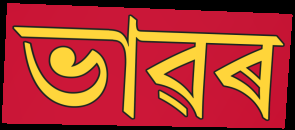
ভাৱৰ